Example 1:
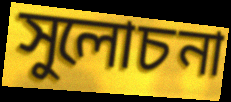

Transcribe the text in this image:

সুলোচনা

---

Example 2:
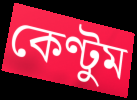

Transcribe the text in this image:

কেণ্টুম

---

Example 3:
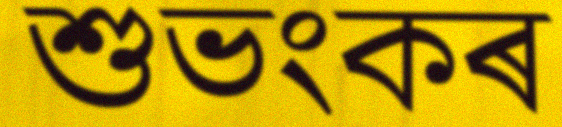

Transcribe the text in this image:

শুভংকৰ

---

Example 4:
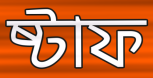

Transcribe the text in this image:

ষ্টাফ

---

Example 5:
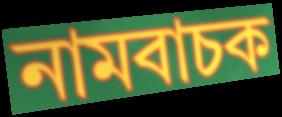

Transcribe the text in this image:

নামবাচক